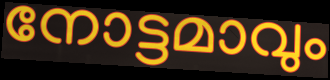
നോട്ടമാവും